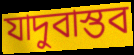
যাদুবাস্তব